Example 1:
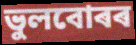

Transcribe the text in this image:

ভুলবোৰৰ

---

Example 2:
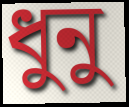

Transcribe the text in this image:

ধুনু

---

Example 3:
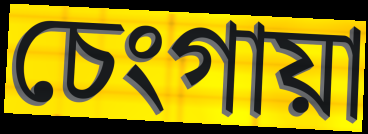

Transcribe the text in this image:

চেংগায়া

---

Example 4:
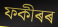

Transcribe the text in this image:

ফকীৰৰ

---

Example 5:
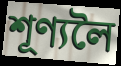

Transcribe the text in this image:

শূণ্যলৈ